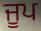
ਜੂਪ